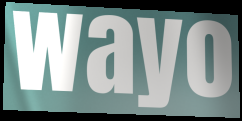
wayo